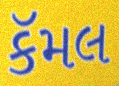
કૅમલ